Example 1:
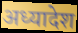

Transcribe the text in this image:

अध्यादेश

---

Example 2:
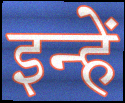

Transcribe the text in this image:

इन्हें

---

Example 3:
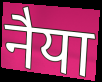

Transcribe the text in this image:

नैया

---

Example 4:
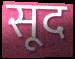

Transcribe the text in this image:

सूद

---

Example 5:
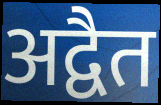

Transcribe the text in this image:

अद्वैत